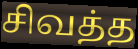
சிவத்த